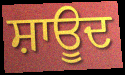
ਸ਼ਾਊਦ